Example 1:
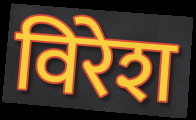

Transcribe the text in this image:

विरेश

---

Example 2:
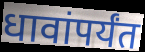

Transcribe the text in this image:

धावांपर्यंत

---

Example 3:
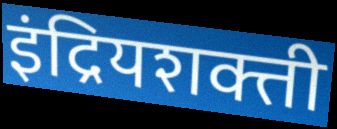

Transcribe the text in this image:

इंद्रियशक्ती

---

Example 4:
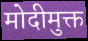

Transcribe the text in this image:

मोदीमुक्त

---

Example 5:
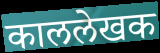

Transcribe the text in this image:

काललेखक